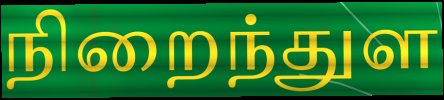
நிறைந்துள